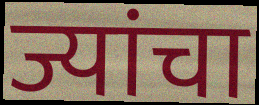
ज्यांचा